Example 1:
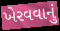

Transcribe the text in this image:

ખેરવવાનું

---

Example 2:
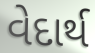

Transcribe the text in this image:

વેદાર્થ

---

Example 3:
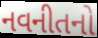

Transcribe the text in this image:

નવનીતનો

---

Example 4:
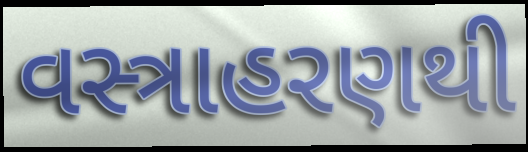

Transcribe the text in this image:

વસ્ત્રાહરણથી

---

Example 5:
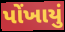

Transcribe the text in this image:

પોંખાયું